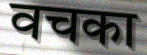
वचका